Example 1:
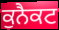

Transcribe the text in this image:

ਕੁਨੈਕਟ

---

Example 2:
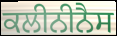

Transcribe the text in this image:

ਕਲੀਨੀਨੈਸ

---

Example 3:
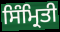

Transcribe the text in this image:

ਸਿੰਮ੍ਰਿਤੀ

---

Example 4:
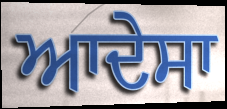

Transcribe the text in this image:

ਆਦੇਸਾ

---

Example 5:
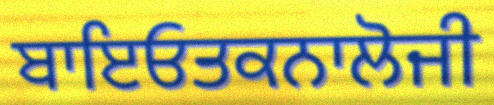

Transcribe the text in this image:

ਬਾਇਓਤਕਨਾਲੋਜੀ